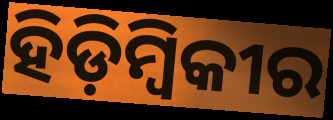
ହିଡ଼ିମ୍ବିକୀର